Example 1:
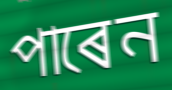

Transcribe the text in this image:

পাৰেন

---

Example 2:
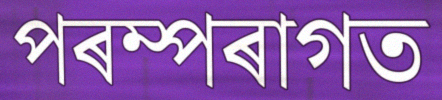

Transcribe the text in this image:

পৰম্পৰাগত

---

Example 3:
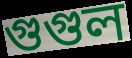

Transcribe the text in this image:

গুগুল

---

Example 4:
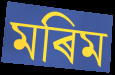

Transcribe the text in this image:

মৰিম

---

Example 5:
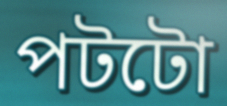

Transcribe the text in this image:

পটটো